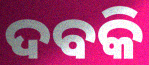
ଦବକି